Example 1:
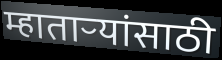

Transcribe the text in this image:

म्हाताऱ्यांसाठी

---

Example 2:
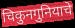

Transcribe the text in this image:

चिकुनगुनियाचे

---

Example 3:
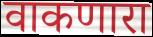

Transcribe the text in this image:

वाकणारा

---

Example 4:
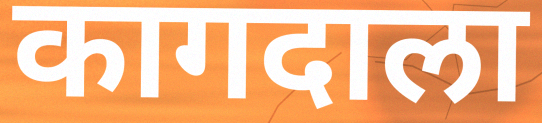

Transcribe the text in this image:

कागदाला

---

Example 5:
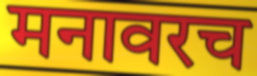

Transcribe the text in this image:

मनावरच